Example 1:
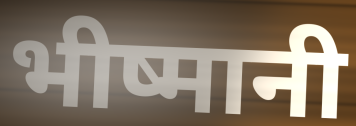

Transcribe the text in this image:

भीष्मानी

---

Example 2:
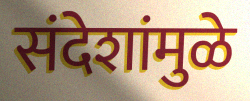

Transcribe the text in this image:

संदेशांमुळे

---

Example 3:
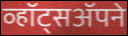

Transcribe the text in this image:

व्हॉट्सॲपने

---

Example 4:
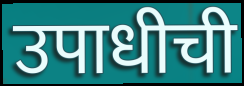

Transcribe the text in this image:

उपाधीची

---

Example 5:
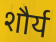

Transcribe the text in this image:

शौर्य